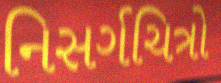
નિસર્ગચિત્રો